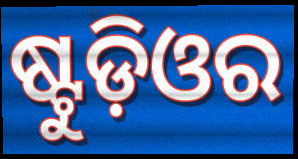
ଷ୍ଟୁଡ଼ିଓର